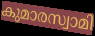
കുമാരസ്വാമി